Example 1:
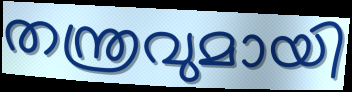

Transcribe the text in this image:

തന്ത്രവുമായി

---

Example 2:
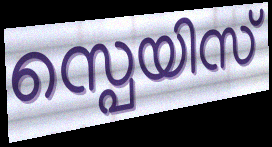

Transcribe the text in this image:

സ്പെയിസ്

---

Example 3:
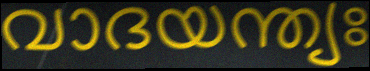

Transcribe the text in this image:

വാദയന്ത്യഃ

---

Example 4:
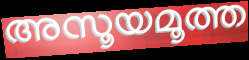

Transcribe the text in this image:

അസൂയമൂത്ത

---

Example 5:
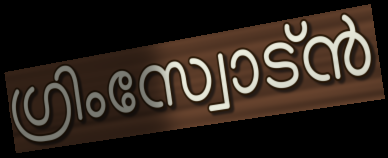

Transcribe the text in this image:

ഗ്രിംസ്വോട്ൻ